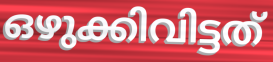
ഒഴുക്കിവിട്ടത്